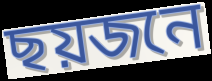
ছয়জনে